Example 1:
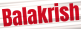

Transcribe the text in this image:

Balakrish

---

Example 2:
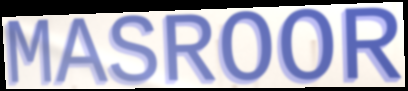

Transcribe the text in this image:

MASROOR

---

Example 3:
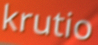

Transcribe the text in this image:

krutio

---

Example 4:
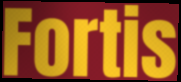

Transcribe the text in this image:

Fortis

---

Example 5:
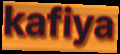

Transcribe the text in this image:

kafiya